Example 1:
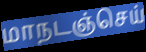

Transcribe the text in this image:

மாநடஞ்செய்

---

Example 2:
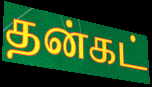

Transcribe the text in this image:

தன்கட்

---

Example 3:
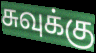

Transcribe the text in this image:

சுவுக்கு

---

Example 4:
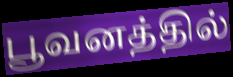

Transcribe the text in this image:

பூவனத்தில்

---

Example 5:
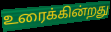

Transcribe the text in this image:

உரைக்கின்றது